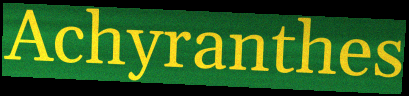
Achyranthes